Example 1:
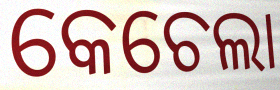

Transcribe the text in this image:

କେଚେଲା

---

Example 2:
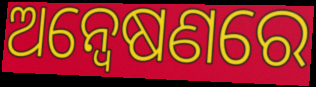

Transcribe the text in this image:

ଅନ୍ବେଷଣରେ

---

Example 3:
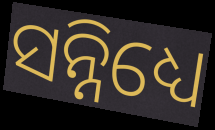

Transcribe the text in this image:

ସନ୍ନିଧ୍ୟେ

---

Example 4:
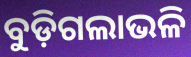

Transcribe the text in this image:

ବୁଡ଼ିଗଲାଭଳି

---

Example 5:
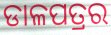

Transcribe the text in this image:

ଡାଳପତ୍ରର